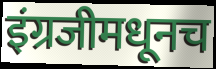
इंग्रजीमधूनच